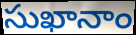
సుఖానాం